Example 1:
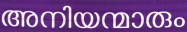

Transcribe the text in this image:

അനിയന്മാരും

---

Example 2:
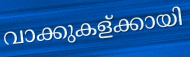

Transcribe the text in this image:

വാക്കുകള്ക്കായി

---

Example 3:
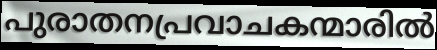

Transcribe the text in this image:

പുരാതനപ്രവാചകന്മാരിൽ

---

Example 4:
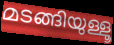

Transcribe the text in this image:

മടങ്ങിയുള്ളൂ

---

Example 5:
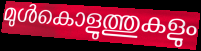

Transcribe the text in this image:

മുൾകൊളുത്തുകളും